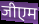
जीएम